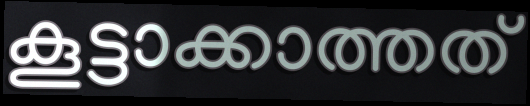
കൂട്ടാക്കാത്തത്